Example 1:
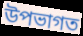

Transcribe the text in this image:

উপভাগত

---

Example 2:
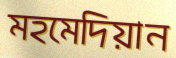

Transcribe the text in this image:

মহমেদিয়ান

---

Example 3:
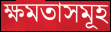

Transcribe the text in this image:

ক্ষমতাসমূহ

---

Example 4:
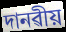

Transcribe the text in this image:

দানৱীয়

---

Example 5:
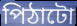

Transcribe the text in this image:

পিঠাটো